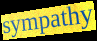
sympathy